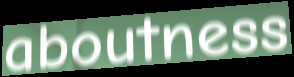
aboutness